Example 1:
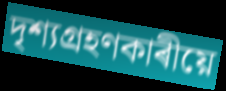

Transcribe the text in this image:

দৃশ্যগ্ৰহণকাৰীয়ে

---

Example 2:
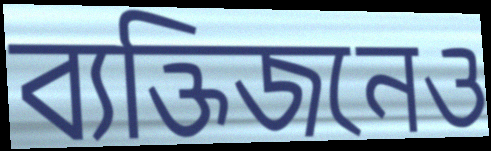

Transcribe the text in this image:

ব্যক্তিজনেও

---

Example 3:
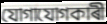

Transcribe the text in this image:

যোগাযোগকাৰী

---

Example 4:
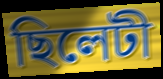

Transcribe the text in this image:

ছিলেটী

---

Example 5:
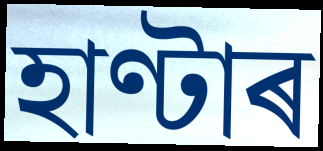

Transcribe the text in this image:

হাণ্টাৰ